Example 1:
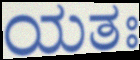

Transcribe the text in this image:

ಯತಃ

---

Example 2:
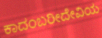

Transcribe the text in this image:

ಕಾದಂಬರೀದೇವಿಯ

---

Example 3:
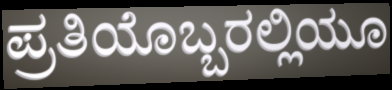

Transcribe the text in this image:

ಪ್ರತಿಯೊಬ್ಬರಲ್ಲಿಯೂ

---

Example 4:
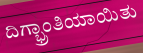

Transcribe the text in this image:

ದಿಗ್ಭ್ರಾಂತಿಯಾಯಿತು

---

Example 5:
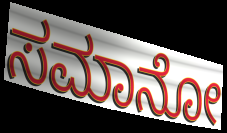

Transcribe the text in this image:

ಸಮಾನೋ